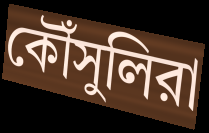
কৌঁসুলিরা